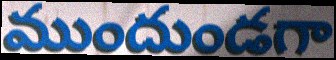
ముందుండగా